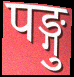
पङ्गु